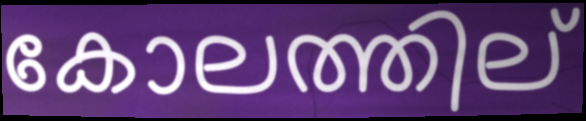
കോലത്തില്